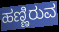
ಹಣ್ಣಿರುವ